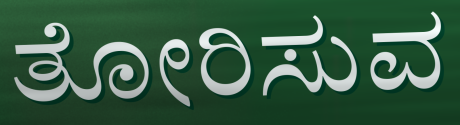
ತೋರಿಸುವ